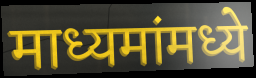
माध्यमांमध्ये